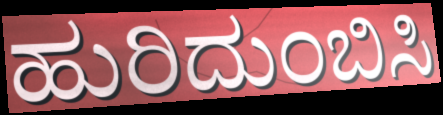
ಹುರಿದುಂಬಿಸಿ